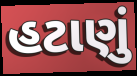
હટાણું